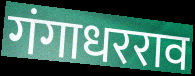
गंगाधरराव